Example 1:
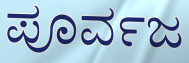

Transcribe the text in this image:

ಪೂರ್ವಜ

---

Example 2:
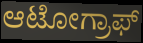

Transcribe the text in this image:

ಆಟೋಗ್ರಾಫ್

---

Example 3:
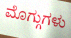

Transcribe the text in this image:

ಮೊಗ್ಗುಗಳು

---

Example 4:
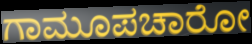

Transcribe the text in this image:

ಗಾಮೂಪಚಾರೋ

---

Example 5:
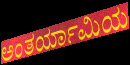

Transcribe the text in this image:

ಅಂತರ್ಯಾಮಿಯ